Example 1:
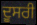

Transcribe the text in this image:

ਦੂਸਰੀ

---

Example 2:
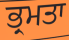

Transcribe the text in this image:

ਭ੍ਰਮਤਾ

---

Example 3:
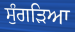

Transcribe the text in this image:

ਸੁੰਗੜਿਆ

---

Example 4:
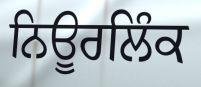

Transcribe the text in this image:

ਨਿਊਰਲਿੰਕ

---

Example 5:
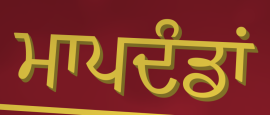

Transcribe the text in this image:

ਮਾਪਦੰਡਾਂ